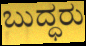
ಬುದ್ಧರು